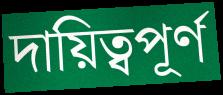
দায়িত্বপূর্ণ